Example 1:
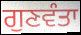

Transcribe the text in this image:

ਗੁਣਵੰਤਾ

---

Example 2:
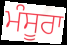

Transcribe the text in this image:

ਮੰਸੂਰਾ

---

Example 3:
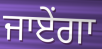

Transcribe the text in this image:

ਜਾਏਂਗਾ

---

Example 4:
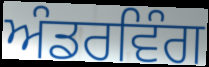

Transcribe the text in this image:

ਅੰਡਰਵਿੰਗ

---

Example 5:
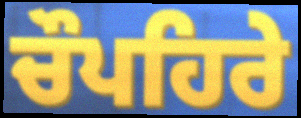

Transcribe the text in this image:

ਚੌਪਹਿਰੇ